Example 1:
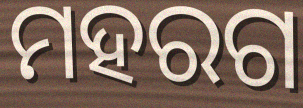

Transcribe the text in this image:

ମହରଗ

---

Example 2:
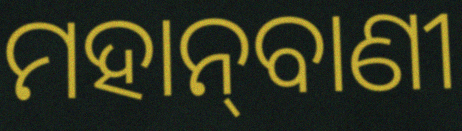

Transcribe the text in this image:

ମହାନ୍‌ବାଣୀ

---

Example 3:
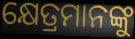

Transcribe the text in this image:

କ୍ଷେତ୍ରମାନଙ୍କୁ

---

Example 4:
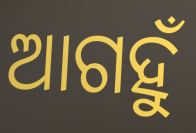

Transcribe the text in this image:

ଆଗହୁଁ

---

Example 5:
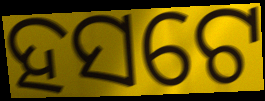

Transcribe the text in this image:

ହସଟେ